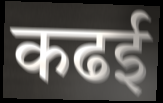
कढई